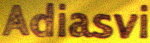
Adiasvi